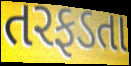
તરફડતા